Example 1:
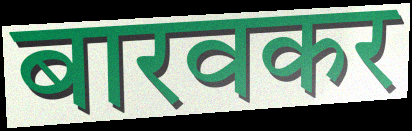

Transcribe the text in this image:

बारवकर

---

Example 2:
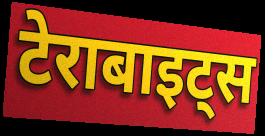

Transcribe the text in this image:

टेराबाइट्स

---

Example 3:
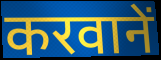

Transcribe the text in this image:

करवानें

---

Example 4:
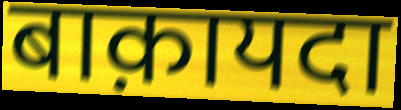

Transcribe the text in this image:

बाक़ायदा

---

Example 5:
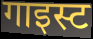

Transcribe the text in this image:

गाइस्ट